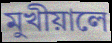
মুখীয়ালে